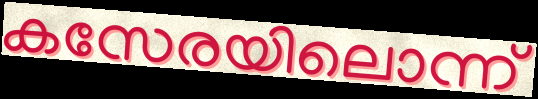
കസേരയിലൊന്ന്